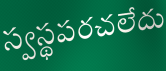
స్వస్థపరచలేదు